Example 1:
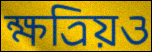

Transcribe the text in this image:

ক্ষত্রিয়ও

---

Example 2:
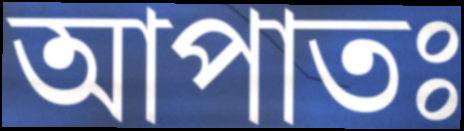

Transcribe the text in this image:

আপাতঃ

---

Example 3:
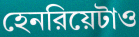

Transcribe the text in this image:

হেনরিয়েটাও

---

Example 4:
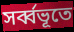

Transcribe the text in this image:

সর্ব্বভূতে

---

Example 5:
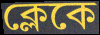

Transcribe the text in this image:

ক্লেকে